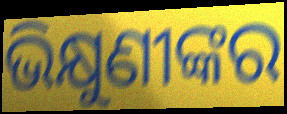
ଭିକ୍ଷୁଣୀଙ୍କର